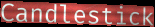
Candlestick